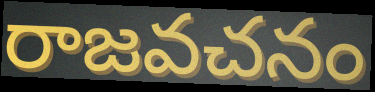
రాజవచనం